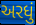
અરધું